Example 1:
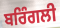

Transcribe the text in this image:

ਬਰਿੰਗਲੀ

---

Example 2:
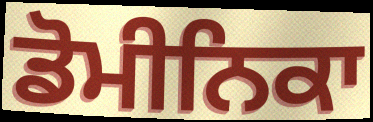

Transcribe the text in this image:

ਡੋਮੀਨਿਕਾ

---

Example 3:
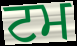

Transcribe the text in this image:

ਟਮ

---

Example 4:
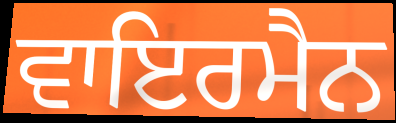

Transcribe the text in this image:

ਵਾਇਰਮੈਨ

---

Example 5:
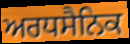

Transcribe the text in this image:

ਅਰਧਸੈਨਿਕ